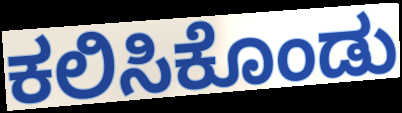
ಕಲಿಸಿಕೊಂಡು